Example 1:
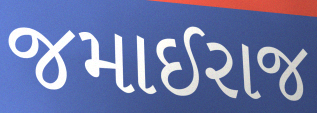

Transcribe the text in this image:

જમાઈરાજ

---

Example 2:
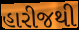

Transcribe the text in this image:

હારીજથી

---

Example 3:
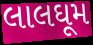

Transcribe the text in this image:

લાલઘૂમ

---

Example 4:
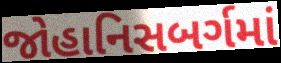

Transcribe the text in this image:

જોહાનિસબર્ગમાં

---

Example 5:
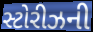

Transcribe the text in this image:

સ્ટોરીઝની